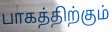
பாகத்திற்கும்